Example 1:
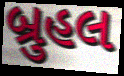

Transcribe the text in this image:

બ્રુહલ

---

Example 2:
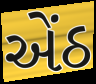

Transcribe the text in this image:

એંઠ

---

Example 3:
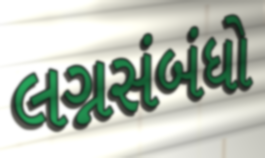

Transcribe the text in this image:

લગ્નસંબંધો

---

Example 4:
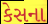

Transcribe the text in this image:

કેસના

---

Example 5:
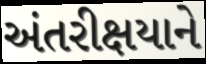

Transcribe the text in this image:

અંતરીક્ષયાને